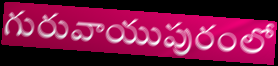
గురువాయుపురంలో